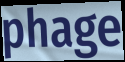
phage